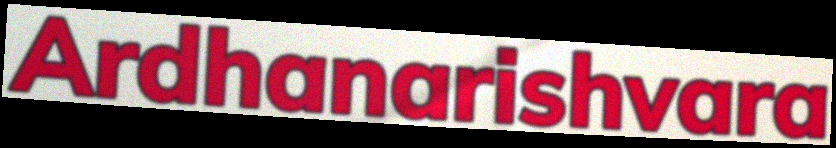
Ardhanarishvara